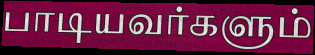
பாடியவர்களும்